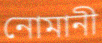
নোমানী